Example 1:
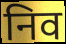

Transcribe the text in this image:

निव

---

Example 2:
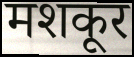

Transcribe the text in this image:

मशकूर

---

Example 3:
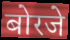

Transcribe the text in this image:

बोरजे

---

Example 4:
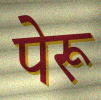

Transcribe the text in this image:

पेरू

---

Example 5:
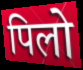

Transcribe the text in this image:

पिलो